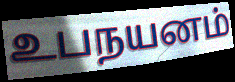
உபநயனம்